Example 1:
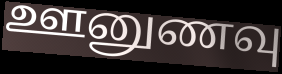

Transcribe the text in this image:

ஊனுணவு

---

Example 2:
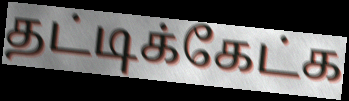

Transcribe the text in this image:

தட்டிக்கேட்க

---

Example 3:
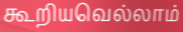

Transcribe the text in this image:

கூறியவெல்லாம்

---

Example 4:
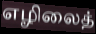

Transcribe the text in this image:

எழிலைத்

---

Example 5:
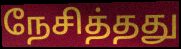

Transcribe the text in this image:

நேசித்தது